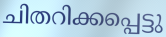
ചിതറിക്കപ്പെട്ടു